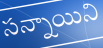
సన్నాయిని